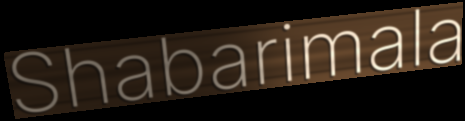
Shabarimala